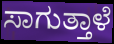
ಸಾಗುತ್ತಾಳೆ